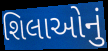
શિલાઓનું